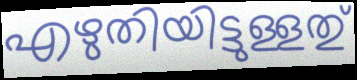
എഴുതിയിട്ടുള്ളതു്